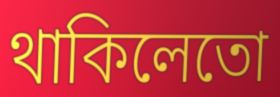
থাকিলেতো